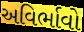
અવિર્ભાવો